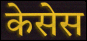
केसेस